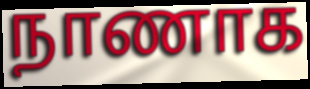
நாணாக